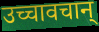
उच्चावचान्